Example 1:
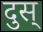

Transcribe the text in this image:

दुस्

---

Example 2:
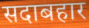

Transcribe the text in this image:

सदाबहार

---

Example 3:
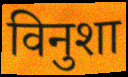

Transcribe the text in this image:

विनुशा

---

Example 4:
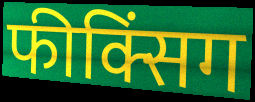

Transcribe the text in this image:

फीक्सिंग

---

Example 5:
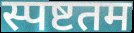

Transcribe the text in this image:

स्पष्टतम